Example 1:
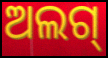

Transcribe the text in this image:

ଅଲଗ୍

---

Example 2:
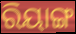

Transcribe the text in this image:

ରିୟାଙ୍ଗ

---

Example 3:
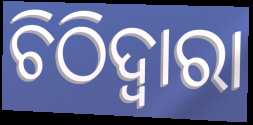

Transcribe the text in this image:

ଚିଠିଦ୍ୱାରା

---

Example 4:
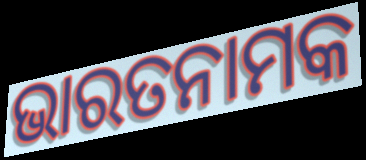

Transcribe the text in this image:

ଭାରତନାମକ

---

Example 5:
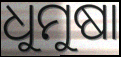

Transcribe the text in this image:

ଧୁମୁଷା